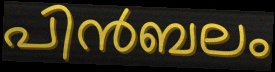
പിൻബലം